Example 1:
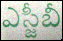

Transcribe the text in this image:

ఎస్జీబీ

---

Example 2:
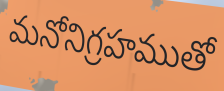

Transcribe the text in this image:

మనోనిగ్రహముతో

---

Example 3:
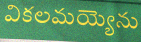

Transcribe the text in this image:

వికలమయ్యెను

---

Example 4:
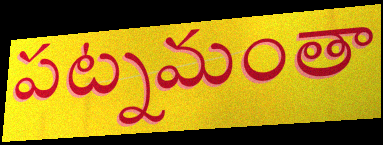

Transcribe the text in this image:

పట్నమంతా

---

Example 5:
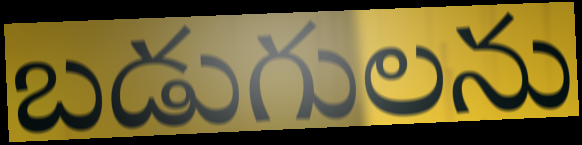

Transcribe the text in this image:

బడుగులను